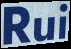
Rui